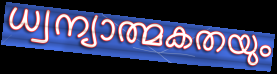
ധ്വന്യാത്മകതയും